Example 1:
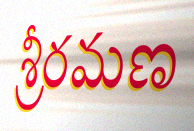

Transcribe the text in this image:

శ్రీరమణ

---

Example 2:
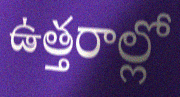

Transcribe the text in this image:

ఉత్తరాల్లో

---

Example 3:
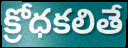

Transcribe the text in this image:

క్రోధకలితే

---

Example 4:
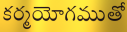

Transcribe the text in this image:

కర్మయోగముతో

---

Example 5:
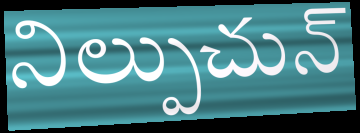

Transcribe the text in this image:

నిల్పుచున్